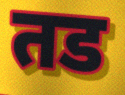
तड